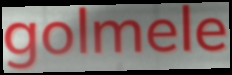
golmele